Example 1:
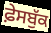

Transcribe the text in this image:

ਫ਼ੇਸਬੁੱਕ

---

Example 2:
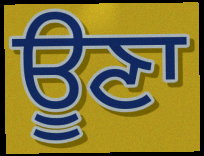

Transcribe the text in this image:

ਊਣਾ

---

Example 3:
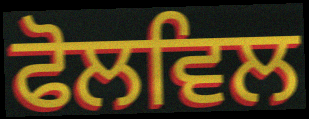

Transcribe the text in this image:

ਫੋਲਵਿਲ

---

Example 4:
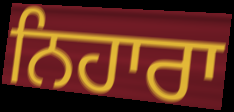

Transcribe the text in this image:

ਨਿਹਾਰਾ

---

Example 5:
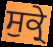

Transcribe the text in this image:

ਸੁਕ੍ਰੇ